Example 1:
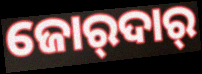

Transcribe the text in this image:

ଜୋର୍‍ଦାର୍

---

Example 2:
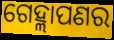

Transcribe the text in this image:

ଗେହ୍ଲାପଣର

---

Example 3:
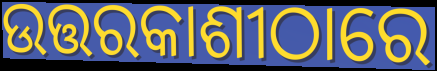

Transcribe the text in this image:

ଉତ୍ତରକାଶୀଠାରେ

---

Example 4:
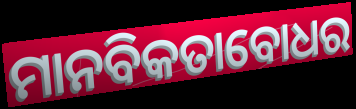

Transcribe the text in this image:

ମାନବିକତାବୋଧର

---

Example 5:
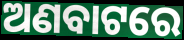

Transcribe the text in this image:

ଅଣବାଟରେ